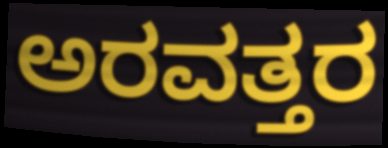
ಅರವತ್ತರ